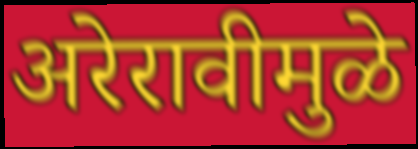
अरेरावीमुळे